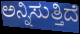
ಅನ್ನಿಸುತ್ತಿದೆ